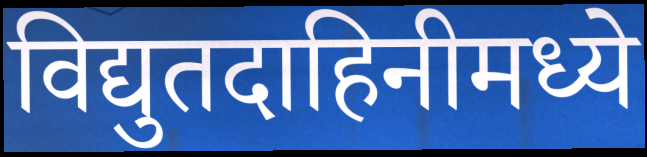
विद्युतदाहिनीमध्ये